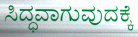
ಸಿದ್ಧವಾಗುವುದಕ್ಕೆ